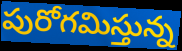
పురోగమిస్తున్న